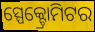
ସ୍ପେକ୍ଟ୍ରୋମିଟର